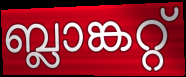
ബ്ലാങ്കറ്റ്